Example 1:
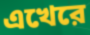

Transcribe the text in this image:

এখেরে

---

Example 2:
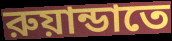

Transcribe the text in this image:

রুয়ান্ডাতে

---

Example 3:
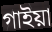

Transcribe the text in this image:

গাইয়া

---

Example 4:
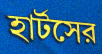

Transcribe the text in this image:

হার্টসের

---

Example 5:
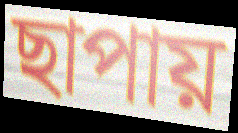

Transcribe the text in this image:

ছাপায়